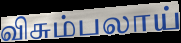
விசும்பலாய்